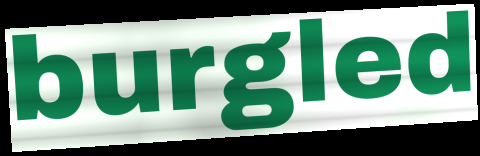
burgled